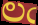
లఁ